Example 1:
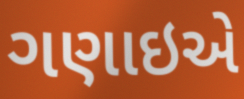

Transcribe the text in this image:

ગણાઇએ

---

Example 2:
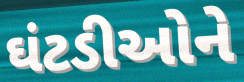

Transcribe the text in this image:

ઘંટડીઓને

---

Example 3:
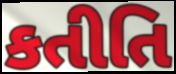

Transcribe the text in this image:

કતીતિ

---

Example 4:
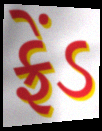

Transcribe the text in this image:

ફ્રેંડ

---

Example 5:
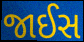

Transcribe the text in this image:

જાઈસ